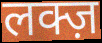
लक्ज़